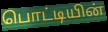
பொட்டியின்